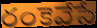
రంకెవేసే